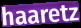
haaretz